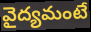
వైద్యమంటే